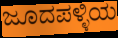
ಜೂದಪಳ್ಳಿಯ